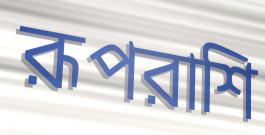
রূপরাশি